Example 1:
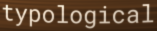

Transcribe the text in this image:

typological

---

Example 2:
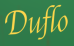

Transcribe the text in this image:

Duflo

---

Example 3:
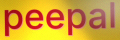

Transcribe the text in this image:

peepal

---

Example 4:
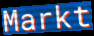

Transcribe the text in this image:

Markt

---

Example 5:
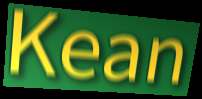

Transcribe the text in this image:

Kean